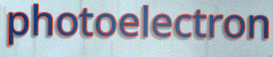
photoelectron